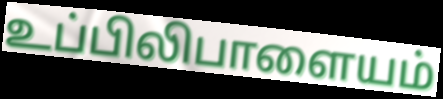
உப்பிலிபாளையம்